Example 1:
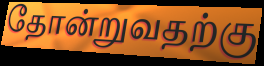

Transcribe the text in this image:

தோன்றுவதற்கு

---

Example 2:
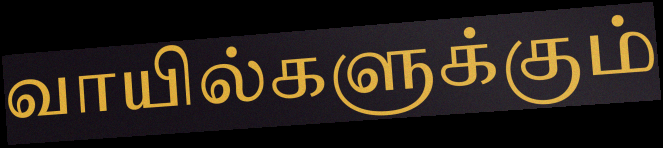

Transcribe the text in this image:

வாயில்களுக்கும்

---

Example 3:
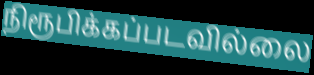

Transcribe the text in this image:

நிரூபிக்கப்படவில்லை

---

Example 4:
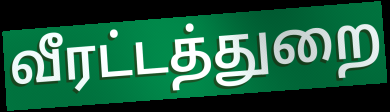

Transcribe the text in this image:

வீரட்டத்துறை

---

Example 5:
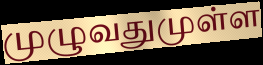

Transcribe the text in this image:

முழுவதுமுள்ள